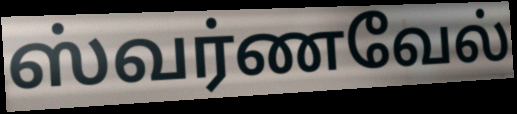
ஸ்வர்ணவேல்